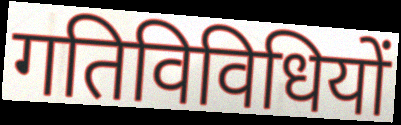
गतिविविधियों